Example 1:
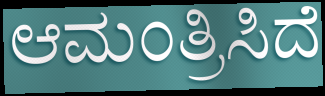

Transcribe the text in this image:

ಆಮಂತ್ರಿಸಿದೆ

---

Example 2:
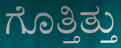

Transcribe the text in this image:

ಗೊತ್ತಿತ್ತು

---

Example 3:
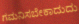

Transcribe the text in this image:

ಗಮನಿಸಬೇಕಾದುದು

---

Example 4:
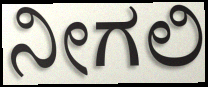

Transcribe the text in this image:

ನೀಗಲಿ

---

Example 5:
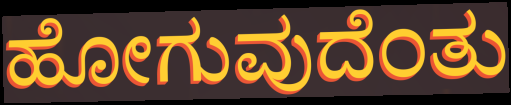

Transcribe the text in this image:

ಹೋಗುವುದೆಂತು